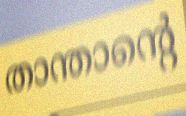
താന്താന്റെ